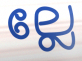
ല്ലേ